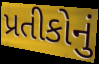
પ્રતીકોનું